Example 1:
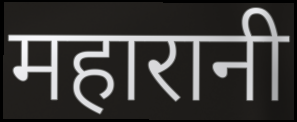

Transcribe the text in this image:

महारानी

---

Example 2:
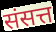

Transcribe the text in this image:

संसत्त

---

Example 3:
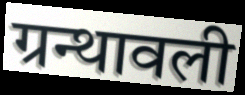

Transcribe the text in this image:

ग्रन्थावली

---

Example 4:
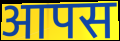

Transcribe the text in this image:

आपस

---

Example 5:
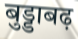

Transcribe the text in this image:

बुड्डाबढ़